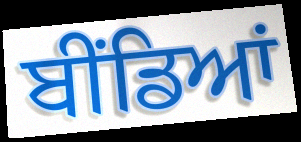
ਬੀਂਡਿਆਂ